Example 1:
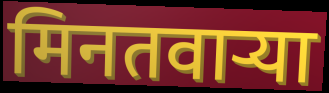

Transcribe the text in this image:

मिनतवार्‍या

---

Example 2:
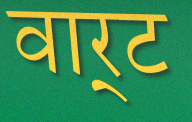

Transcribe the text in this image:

वार्ट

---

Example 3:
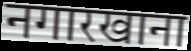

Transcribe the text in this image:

नगारखाना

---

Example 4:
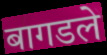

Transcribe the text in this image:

बागडले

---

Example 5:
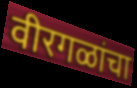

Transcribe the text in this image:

वीरगळांचा